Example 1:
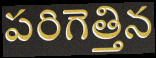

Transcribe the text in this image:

పరిగెత్తిన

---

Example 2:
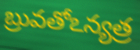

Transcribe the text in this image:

బ్రువతోఽన్యత్ర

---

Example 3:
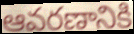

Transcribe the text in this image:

ఆవరణానికి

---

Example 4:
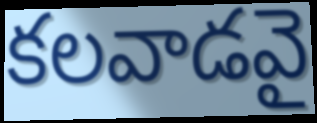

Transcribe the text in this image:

కలవాడవై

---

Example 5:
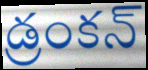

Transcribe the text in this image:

డ్రంకన్